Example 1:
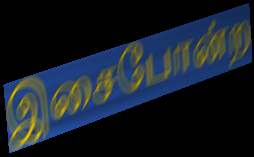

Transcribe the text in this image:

இசைபோன்ற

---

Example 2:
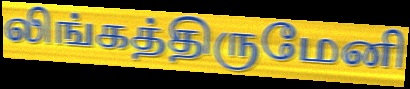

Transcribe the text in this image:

லிங்கத்திருமேனி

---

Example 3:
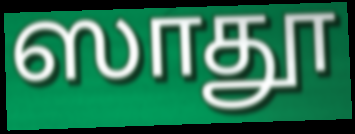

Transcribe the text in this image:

ஸாதூ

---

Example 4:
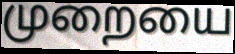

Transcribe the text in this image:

முறையை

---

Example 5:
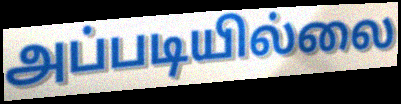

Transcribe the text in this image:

அப்படியில்லை